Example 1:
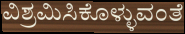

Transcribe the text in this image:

ವಿಶ್ರಮಿಸಿಕೊಳ್ಳುವಂತೆ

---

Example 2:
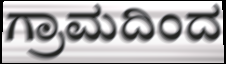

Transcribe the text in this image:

ಗ್ರಾಮದಿಂದ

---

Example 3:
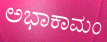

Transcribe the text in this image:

ಅಭಾಕಾಮಂ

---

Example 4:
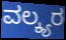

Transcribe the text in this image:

ವಲ್ಕ್ಯರ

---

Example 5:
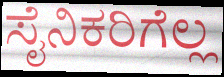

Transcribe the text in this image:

ಸೈನಿಕರಿಗೆಲ್ಲ